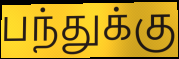
பந்துக்கு